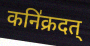
कनि॑क्रदत्